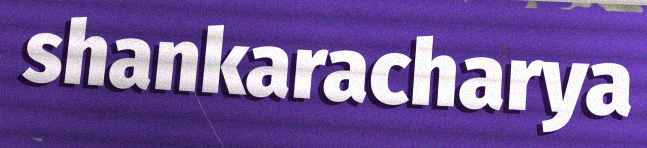
shankaracharya